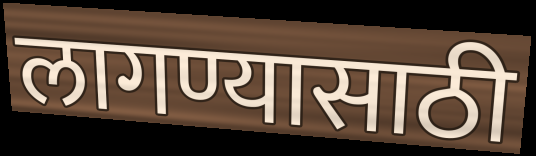
लागण्यासाठी